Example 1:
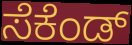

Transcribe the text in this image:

ಸೆಕೆಂಡ್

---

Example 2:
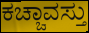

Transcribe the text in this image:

ಕಚ್ಚಾವಸ್ತು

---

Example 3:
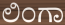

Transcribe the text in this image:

ಲಿಂಗಾ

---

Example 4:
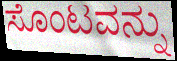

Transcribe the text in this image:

ಸೊಂಟವನ್ನು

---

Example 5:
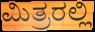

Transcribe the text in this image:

ಮಿತ್ರರಲ್ಲಿ